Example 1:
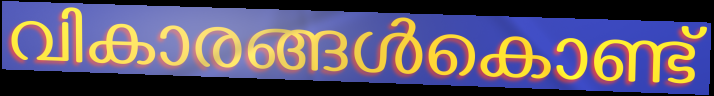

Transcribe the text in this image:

വികാരങ്ങൾകൊണ്ട്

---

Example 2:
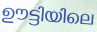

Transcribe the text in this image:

ഊട്ടിയിലെ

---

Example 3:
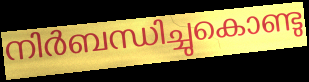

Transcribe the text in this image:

നിർബന്ധിച്ചുകൊണ്ടു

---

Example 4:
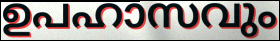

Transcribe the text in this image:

ഉപഹാസവും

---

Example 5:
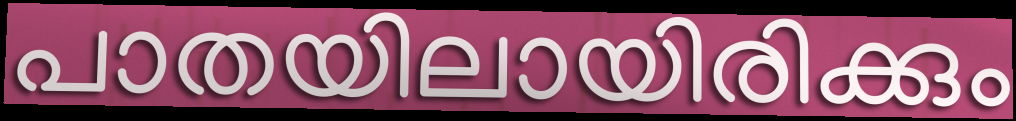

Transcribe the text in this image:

പാതയിലായിരിക്കും